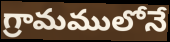
గ్రామములోనే